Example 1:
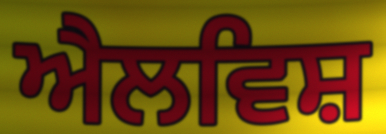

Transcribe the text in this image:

ਐਲਵਿਸ਼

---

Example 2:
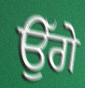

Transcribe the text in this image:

ਉੱਗੇ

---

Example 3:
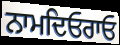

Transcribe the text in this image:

ਨਾਮਦਿਓਰਾਓ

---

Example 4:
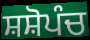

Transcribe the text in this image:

ਸ਼ਸ਼ੋਪੰਚ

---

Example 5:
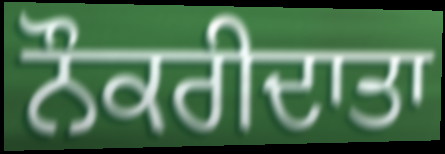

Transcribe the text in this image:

ਨੌਕਰੀਦਾਤਾ